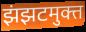
झंझटमुक्त